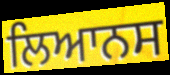
ਲਿਆਨਸ